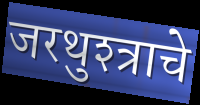
जरथुश्त्राचे